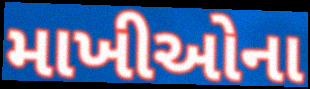
માખીઓના